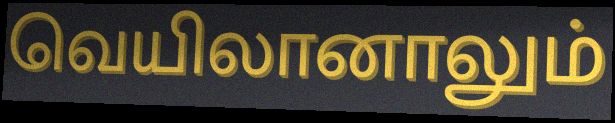
வெயிலானாலும்